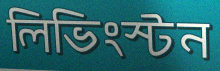
লিভিংস্টন